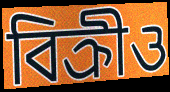
বিক্ৰীও